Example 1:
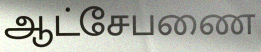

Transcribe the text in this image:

ஆட்சேபணை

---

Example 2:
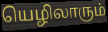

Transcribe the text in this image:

யெழிலாரும்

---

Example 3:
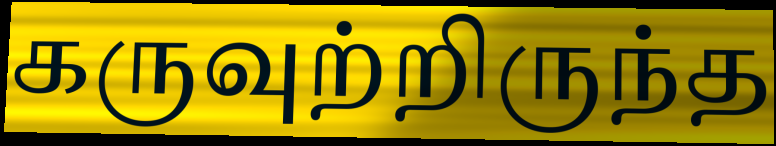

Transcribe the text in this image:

கருவுற்றிருந்த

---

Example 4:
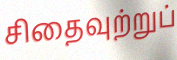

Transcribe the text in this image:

சிதைவுற்றுப்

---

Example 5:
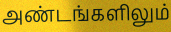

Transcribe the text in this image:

அண்டங்களிலும்